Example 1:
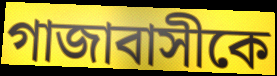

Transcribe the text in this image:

গাজাবাসীকে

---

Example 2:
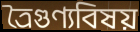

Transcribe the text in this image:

ত্রৈগুণ্যবিষয়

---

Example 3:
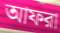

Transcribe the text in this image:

আফরা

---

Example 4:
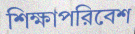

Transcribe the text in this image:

শিক্ষাপরিবেশ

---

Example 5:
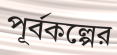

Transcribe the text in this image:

পূর্বকল্পের